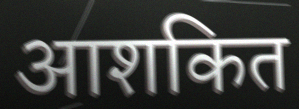
आशकित